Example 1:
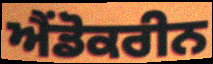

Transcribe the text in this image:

ਐਂਡੋਕਰੀਨ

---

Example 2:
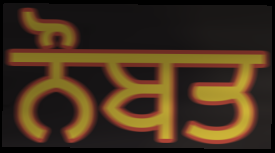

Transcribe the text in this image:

ਨੌਬਤ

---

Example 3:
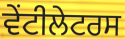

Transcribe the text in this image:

ਵੇਂਟੀਲੇਟਰਸ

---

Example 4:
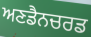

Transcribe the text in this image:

ਅਣਡੈਨਚਰਡ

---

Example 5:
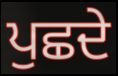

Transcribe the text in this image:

ਪੁਛਦੇ